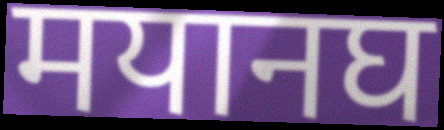
मयानघ